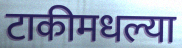
टाकीमधल्या